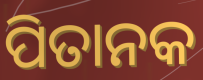
ପିତାନକ